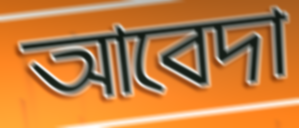
আবেদা